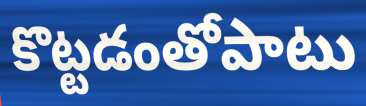
కొట్టడంతోపాటు